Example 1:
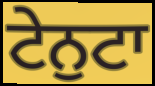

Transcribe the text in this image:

ਟੇਨੁਟਾ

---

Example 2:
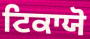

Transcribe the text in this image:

ਟਿਕਾਯੋ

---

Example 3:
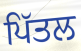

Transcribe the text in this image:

ਪਿੱਤਲ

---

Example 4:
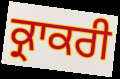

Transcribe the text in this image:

ਕ੍ਰਾਕਰੀ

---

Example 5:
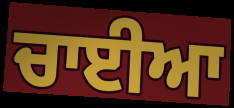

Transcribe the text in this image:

ਚਾਈਆ